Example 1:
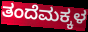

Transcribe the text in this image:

ತಂದೆಮಕ್ಕಳ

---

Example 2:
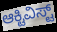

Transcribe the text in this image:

ಆಕ್ಟಿವಿಸ್ಟ್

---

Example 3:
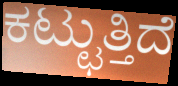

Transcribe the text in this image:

ಕಟ್ಟುತ್ತಿದೆ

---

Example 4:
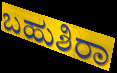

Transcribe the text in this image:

ಬಹುಶಿರಾ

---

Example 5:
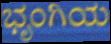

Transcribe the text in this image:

ಭೃಂಗಿಯ